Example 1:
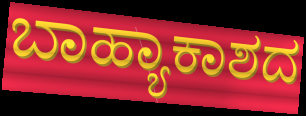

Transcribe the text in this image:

ಬಾಹ್ಯಾಕಾಶದ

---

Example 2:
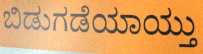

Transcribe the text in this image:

ಬಿಡುಗಡೆಯಾಯ್ತು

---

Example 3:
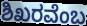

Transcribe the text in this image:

ಶಿಖರವೆಂಬ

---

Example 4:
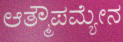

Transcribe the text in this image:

ಆತ್ಮೌಪಮ್ಯೇನ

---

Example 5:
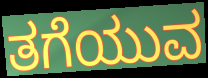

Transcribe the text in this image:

ತಗೆಯುವ